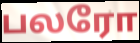
பலரோ